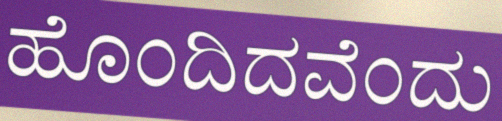
ಹೊಂದಿದವೆಂದು